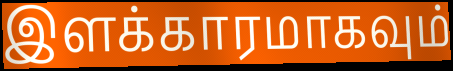
இளக்காரமாகவும்